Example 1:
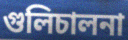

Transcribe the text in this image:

গুলিচালনা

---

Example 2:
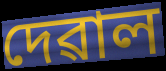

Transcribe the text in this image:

দেৱাল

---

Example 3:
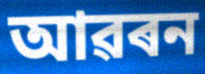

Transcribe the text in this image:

আৱৰন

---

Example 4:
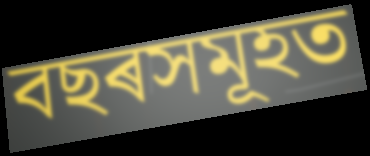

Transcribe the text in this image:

বছৰসমূহত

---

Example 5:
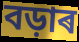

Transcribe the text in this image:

বড়াৰ